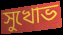
সুখোভ